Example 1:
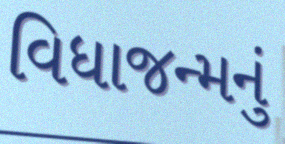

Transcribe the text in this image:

વિધાજન્મનું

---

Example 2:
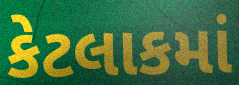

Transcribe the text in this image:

કેટલાકમાં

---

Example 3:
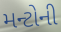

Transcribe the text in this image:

મન્ટોની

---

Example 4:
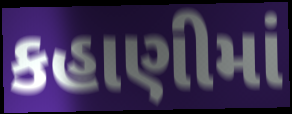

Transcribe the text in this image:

કહાણીમાં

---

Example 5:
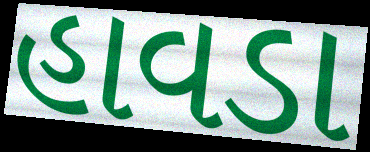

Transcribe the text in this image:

હાવડા